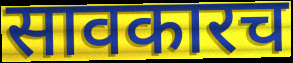
सावकारच